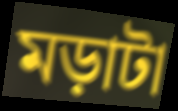
মড়াটা